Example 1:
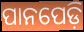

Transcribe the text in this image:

ପାନପେଡ଼ି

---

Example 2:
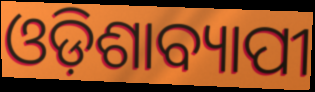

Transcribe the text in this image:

ଓଡ଼ିଶାବ୍ୟାପୀ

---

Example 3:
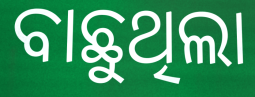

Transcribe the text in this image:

ବାଛୁଥିଲା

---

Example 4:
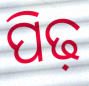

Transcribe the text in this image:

ପିଢ଼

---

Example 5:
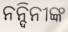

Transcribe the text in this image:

ନନ୍ଦିନୀଙ୍କ